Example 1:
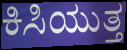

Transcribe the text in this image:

ಕಿಸಿಯುತ್ತ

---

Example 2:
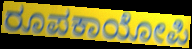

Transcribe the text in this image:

ರೂಪಕಾಯೋಪಿ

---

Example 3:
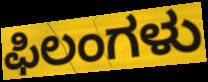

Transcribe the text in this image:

ಫಿಲಂಗಳು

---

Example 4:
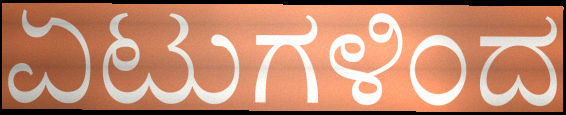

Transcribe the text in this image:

ಏಟುಗಳಿಂದ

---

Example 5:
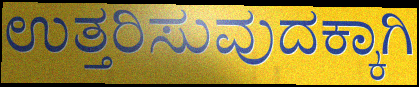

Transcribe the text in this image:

ಉತ್ತರಿಸುವುದಕ್ಕಾಗಿ